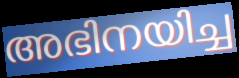
അഭിനയിച്ച